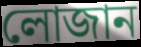
লোজান